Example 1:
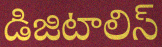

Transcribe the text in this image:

డిజిటాలిస్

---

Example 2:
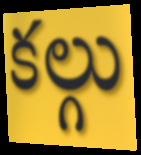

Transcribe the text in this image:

కల్గు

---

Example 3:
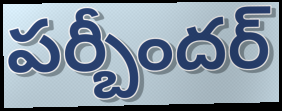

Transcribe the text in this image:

పర్బీందర్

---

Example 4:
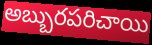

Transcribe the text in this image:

అబ్బురపరిచాయి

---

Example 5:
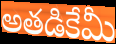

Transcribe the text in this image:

అతడికేమీ